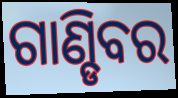
ଗାଣ୍ଡିବର